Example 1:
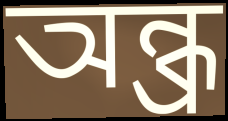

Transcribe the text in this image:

অন্ধ্ৰ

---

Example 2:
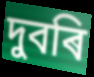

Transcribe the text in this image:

দুবৰি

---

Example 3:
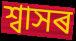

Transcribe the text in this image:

শ্বাসৰ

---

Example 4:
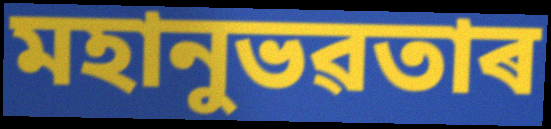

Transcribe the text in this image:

মহানুভৱতাৰ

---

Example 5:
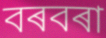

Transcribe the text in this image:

বৰবৰা